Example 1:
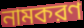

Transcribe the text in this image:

নামকরণ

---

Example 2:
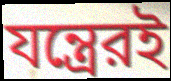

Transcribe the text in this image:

যন্ত্রেরই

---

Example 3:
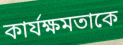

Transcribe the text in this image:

কার্যক্ষমতাকে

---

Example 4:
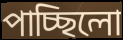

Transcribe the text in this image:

পাচ্ছিলো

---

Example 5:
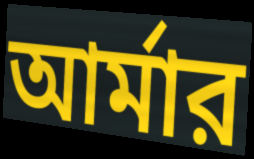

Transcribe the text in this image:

আর্মার